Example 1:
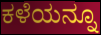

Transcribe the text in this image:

ಕಳೆಯನ್ನೂ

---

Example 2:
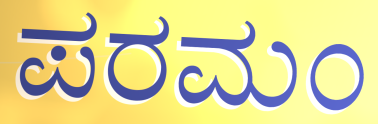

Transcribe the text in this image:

ಪರಮಂ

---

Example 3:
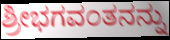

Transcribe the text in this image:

ಶ್ರೀಭಗವಂತನನ್ನು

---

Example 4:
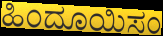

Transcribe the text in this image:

ಹಿಂದೂಯಿಸಂ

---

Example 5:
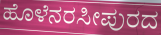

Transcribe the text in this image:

ಹೊಳೆನರಸೀಪುರದ